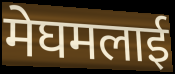
मेघमलाई